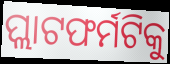
ପ୍ଲାଟଫର୍ମଟିକୁ